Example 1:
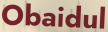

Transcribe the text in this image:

Obaidul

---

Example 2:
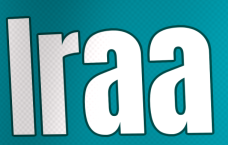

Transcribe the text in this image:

Iraa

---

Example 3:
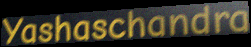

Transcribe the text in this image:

Yashaschandra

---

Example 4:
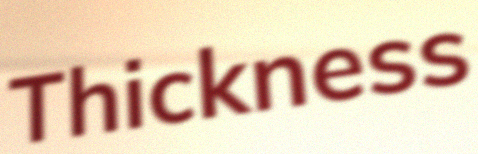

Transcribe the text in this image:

Thickness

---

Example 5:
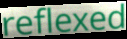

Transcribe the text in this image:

reflexed